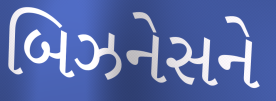
બિઝનેસને